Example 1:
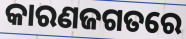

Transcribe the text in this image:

କାରଣଜଗତରେ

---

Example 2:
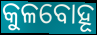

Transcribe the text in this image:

କୁଳବୋହୂ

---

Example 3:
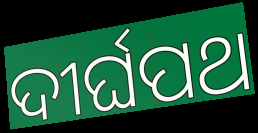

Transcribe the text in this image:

ଦୀର୍ଘପଥ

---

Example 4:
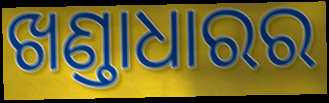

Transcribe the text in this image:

ଖଣ୍ଡାଧାରର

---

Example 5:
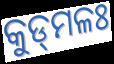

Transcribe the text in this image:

କୁଡ୍‌ମଳଃ